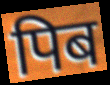
पिब